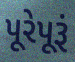
પૂરેપૂરૂં